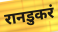
रानडुकरं